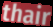
thair